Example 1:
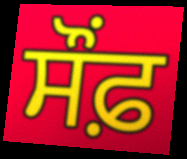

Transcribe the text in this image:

ਸੌਂਫ਼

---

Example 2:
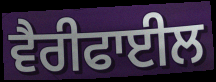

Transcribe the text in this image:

ਵੈਰੀਫਾਈਲ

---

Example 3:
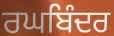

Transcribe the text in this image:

ਰਘਬਿੰਦਰ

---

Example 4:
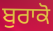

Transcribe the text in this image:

ਬੁਰਾਕੋ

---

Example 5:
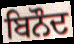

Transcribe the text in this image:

ਬਿਨੌਦ